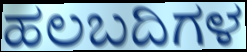
ಹಲಬದಿಗಳ